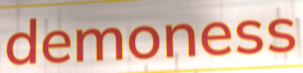
demoness